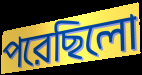
পরেছিলো